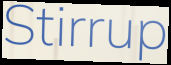
Stirrup